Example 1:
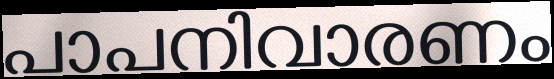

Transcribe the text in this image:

പാപനിവാരണം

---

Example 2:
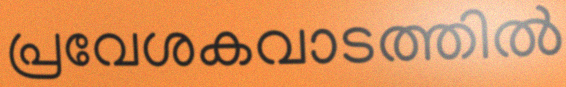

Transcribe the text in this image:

പ്രവേശകവാടത്തിൽ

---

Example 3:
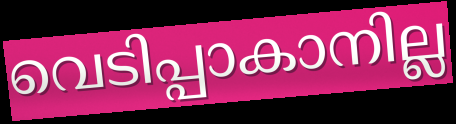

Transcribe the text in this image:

വെടിപ്പാകാനില്ല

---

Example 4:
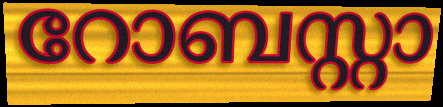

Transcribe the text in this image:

റോബസ്റ്റാ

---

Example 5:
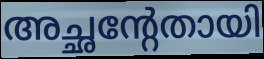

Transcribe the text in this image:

അച്ഛന്റേതായി